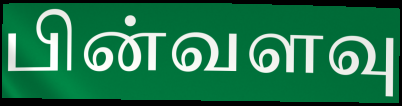
பின்வளவு